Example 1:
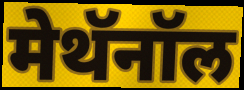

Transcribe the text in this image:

मेथॅनॉल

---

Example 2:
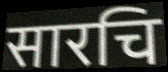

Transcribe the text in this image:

सारचि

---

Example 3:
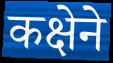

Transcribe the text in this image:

कक्षेने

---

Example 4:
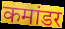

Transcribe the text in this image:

कमांडर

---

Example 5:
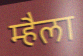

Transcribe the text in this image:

म्हैला